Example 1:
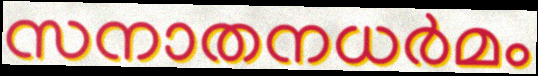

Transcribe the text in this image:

സനാതനധർമം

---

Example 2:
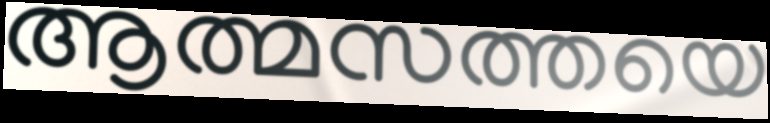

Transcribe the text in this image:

ആത്മസത്തയെ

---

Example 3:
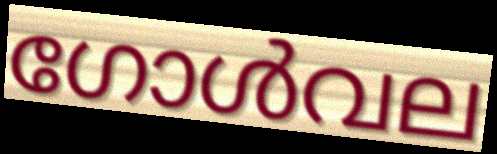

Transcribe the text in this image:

ഗോൾവല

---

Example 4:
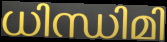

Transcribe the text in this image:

ധിന്ധിമി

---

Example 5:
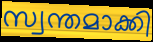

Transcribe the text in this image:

സ്വന്തമാക്കി